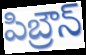
పిబ్రౌన్